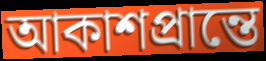
আকাশপ্রান্তে